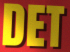
DET